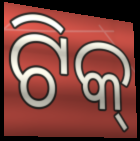
ଟିକ୍